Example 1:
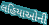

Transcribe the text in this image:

લહિયાઓની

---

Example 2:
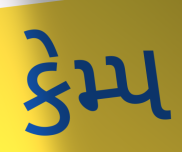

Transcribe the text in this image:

કેમ્પ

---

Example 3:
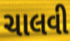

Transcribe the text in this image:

ચાલવી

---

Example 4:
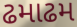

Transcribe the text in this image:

ઢમાઢમ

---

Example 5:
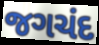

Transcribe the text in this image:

જગચંદ